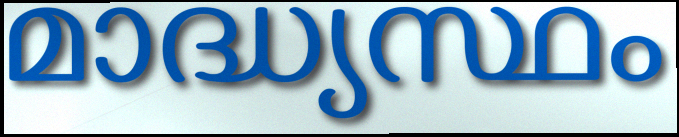
മാദ്ധ്യസ്ഥം